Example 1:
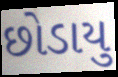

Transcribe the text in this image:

છોડાયુ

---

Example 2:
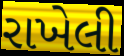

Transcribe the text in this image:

રાખેલી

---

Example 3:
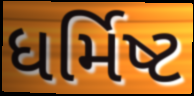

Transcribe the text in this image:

ધર્મિષ્ટ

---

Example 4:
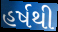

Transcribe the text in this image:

હર્ષથી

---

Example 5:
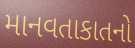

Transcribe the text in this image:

માનવતાકાતનો